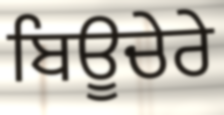
ਬਿਊਚੇਰੇ